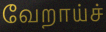
வேறாய்ச்